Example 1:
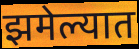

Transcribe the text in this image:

झमेल्यात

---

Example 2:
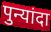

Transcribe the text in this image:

पुन्यांदा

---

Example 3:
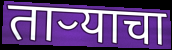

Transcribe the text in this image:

ताऱ्याचा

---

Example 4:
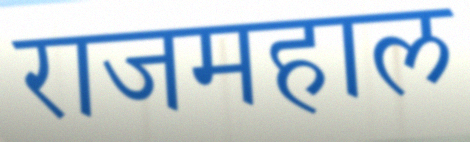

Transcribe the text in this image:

राजमहाल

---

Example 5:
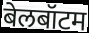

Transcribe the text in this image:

बेलबॉटम